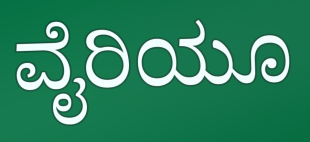
ವೈರಿಯೂ